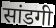
सांडगी